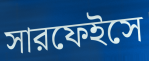
সারফেইসে